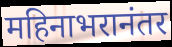
महिनाभरानंतर